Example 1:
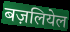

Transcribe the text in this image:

बज़लियेल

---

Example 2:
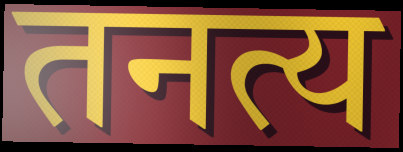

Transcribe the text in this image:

तनत्य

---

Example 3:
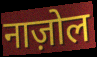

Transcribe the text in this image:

नाज़ोल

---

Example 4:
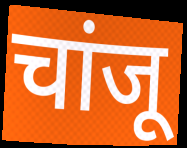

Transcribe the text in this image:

चांजू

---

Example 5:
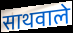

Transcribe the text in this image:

साथवाले